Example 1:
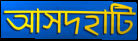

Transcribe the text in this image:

আসদহাটি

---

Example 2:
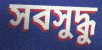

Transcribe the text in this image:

সবসুদ্ধু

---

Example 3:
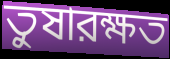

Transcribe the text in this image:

তুষারক্ষত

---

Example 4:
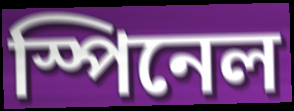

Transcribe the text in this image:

স্পিনেল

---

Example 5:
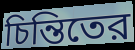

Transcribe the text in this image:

চিন্তিতের